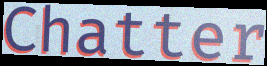
Chatter